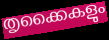
തൃക്കൈകളും